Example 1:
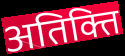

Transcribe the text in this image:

अतिक्ति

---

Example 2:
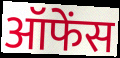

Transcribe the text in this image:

ऑफेंस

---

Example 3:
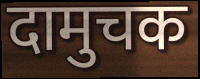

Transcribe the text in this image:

दामुचक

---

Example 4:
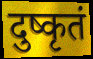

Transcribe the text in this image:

दुष्कृतं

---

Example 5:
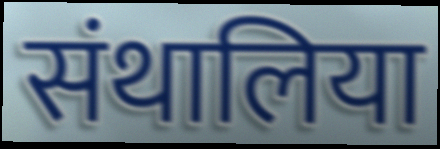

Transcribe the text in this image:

संथालिया